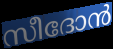
സീദോൻ